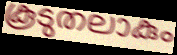
കൂടുതലാകും